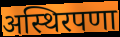
अस्थिरपणा